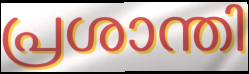
പ്രശാന്തി